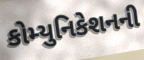
કોમ્યુનિકેશનની